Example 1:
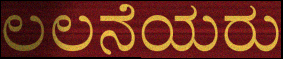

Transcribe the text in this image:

ಲಲನೆಯರು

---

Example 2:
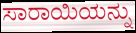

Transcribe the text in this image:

ಸಾರಾಯಿಯನ್ನು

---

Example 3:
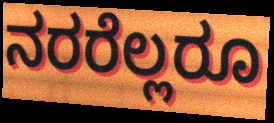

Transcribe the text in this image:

ನರರೆಲ್ಲರೂ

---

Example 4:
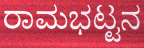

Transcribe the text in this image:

ರಾಮಭಟ್ಟನ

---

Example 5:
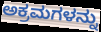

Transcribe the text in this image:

ಅಕ್ರಮಗಳನ್ನು